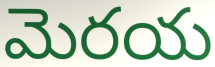
మెరయ